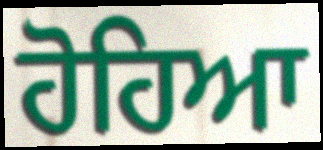
ਹੋਹਿਆ